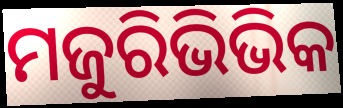
ମଜୁରିଭିଭିକ